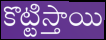
కొట్టిస్తాయి